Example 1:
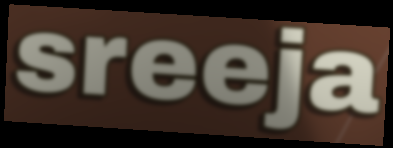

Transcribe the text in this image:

sreeja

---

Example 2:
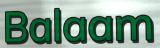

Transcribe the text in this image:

Balaam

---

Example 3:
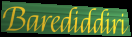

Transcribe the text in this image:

Barediddiri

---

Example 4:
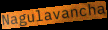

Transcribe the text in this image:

Nagulavancha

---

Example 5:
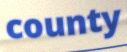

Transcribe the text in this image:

county